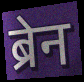
ब्रेन